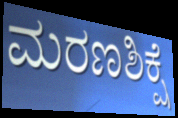
ಮರಣಶಿಕ್ಷೆ